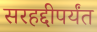
सरहद्दीपर्यंत